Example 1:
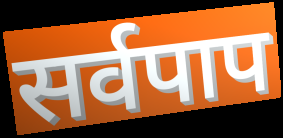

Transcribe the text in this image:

सर्वपाप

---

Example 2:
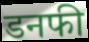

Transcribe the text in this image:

डनफी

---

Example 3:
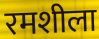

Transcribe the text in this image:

रमशीला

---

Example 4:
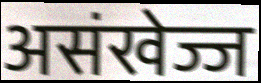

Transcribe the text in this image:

असंखेज्ज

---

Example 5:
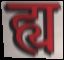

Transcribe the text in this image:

ह्य